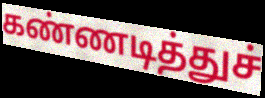
கண்ணடித்துச்